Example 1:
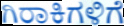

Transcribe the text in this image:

ಗಿರಾಕಿಗಳಿಗೆ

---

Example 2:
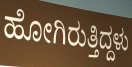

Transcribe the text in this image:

ಹೋಗಿರುತ್ತಿದ್ದಳು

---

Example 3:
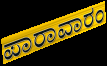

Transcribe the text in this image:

ಪಾರಾವಾರಂ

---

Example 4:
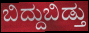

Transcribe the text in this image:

ಬಿದ್ದುಬಿಡ್ತು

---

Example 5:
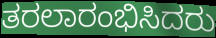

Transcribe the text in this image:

ತರಲಾರಂಭಿಸಿದರು